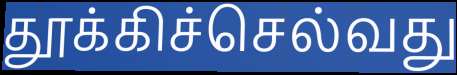
தூக்கிச்செல்வது